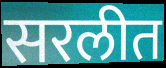
सरलीत